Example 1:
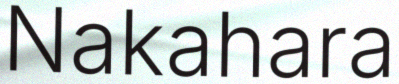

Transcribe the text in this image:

Nakahara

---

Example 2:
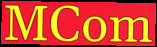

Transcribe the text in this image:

MCom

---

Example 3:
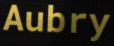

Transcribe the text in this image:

Aubry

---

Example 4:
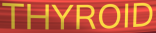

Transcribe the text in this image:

THYROID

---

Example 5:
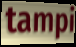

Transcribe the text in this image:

tampi